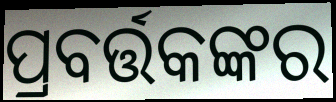
ପ୍ରବର୍ତ୍ତକଙ୍କର